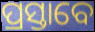
ପ୍ରସ୍ତାବେ